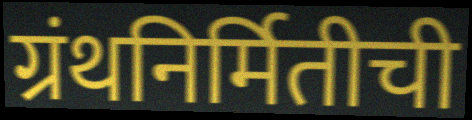
ग्रंथनिर्मितीची